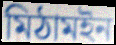
মিঠামইন